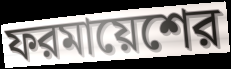
ফরমায়েশের